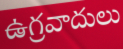
ఉగ్రవాదులు